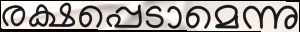
രക്ഷപ്പെടാമെന്നു